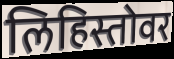
लिहिस्तोवर